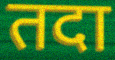
तदा